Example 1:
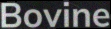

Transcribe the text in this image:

Bovine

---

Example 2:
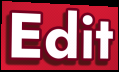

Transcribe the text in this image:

Edit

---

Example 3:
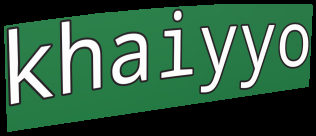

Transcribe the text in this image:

khaiyyo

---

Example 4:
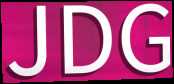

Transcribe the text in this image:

JDG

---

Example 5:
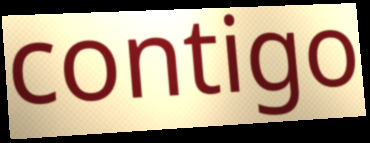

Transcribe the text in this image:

contigo